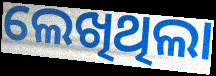
ଲେଖିଥିଲା